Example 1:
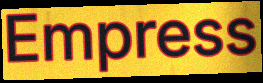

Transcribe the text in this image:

Empress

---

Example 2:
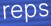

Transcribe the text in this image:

reps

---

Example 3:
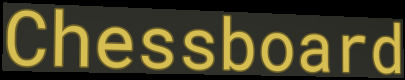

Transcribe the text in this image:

Chessboard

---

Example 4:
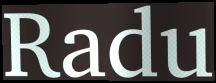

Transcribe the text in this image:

Radu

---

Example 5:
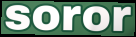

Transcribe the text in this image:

soror